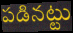
పడినట్టు